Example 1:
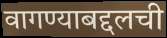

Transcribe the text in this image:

वागण्याबद्दलची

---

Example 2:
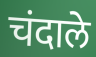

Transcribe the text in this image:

चंदाले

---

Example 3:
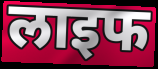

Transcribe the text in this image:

लाइफ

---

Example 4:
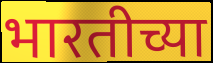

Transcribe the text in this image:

भारतीच्‍या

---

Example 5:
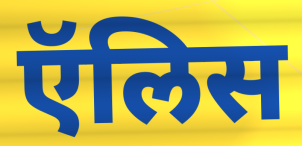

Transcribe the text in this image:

ऍलिस